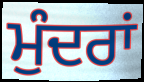
ਮੁੰਦਰਾਂ